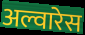
अल्वारेस